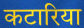
कटारिया